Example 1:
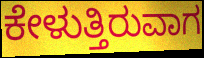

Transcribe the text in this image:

ಕೇಳುತ್ತಿರುವಾಗ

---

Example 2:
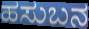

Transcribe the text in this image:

ಹಸುಬನ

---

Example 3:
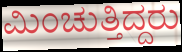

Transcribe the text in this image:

ಮಿಂಚುತ್ತಿದ್ದರು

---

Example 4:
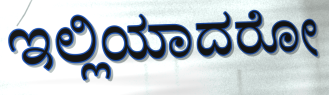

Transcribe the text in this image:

ಇಲ್ಲಿಯಾದರೋ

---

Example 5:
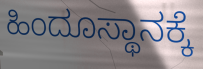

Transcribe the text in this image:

ಹಿಂದೂಸ್ಥಾನಕ್ಕೆ